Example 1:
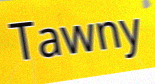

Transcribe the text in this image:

Tawny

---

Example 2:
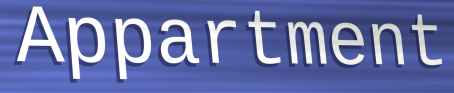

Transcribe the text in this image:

Appartment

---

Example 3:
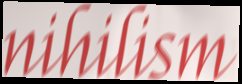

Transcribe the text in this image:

nihilism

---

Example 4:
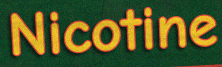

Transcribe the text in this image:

Nicotine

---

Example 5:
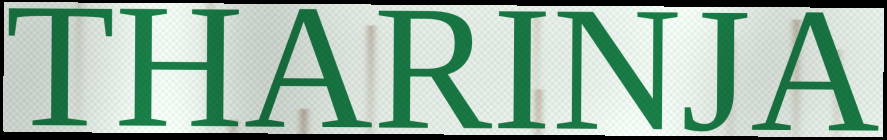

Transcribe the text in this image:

THARINJA